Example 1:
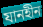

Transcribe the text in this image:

যানহীন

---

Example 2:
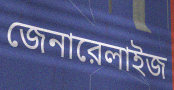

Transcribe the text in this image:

জেনারেলাইজ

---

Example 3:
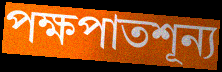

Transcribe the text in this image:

পক্ষপাতশূন্য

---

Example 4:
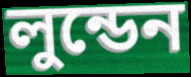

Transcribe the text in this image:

লুন্ডেন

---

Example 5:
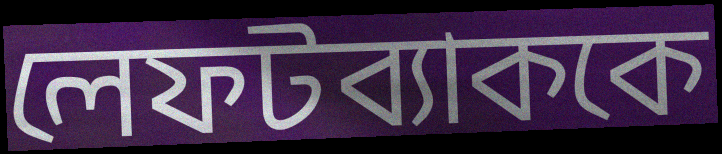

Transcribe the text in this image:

লেফটব্যাককে